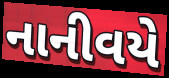
નાનીવયે